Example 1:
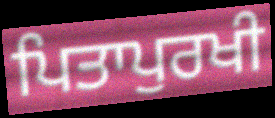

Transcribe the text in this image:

ਪਿਤਾਪੁਰਖੀ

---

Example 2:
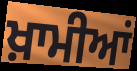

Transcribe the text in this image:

ਖ਼ਾਮੀਆਂ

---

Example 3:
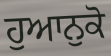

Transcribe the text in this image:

ਹੁਆਨੁਕੋ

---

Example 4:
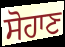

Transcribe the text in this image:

ਸੋਹਾਣ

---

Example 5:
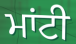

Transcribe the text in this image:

ਮਾਂਟੀ